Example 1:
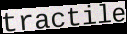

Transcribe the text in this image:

tractile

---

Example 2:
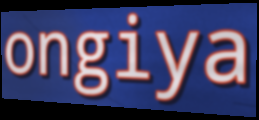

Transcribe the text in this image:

ongiya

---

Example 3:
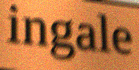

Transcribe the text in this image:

ingale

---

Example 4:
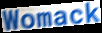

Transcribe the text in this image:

Womack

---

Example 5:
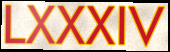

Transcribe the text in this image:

LXXXIV